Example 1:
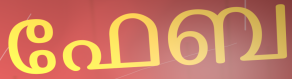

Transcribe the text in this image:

ഫേബ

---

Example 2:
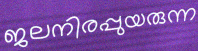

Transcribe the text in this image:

ജലനിരപ്പുയരുന്ന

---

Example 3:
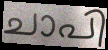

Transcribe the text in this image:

ചാപി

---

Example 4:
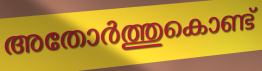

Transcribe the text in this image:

അതോർത്തുകൊണ്ട്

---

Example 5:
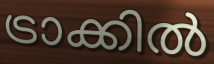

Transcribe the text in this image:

ട്രാക്കിൽ